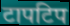
टापटिप